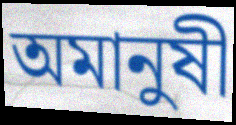
অমানুষী